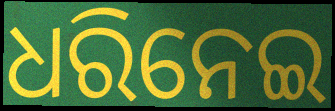
ଧରିନେଇ